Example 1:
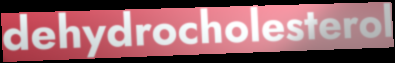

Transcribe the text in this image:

dehydrocholesterol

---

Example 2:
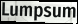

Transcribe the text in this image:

Lumpsum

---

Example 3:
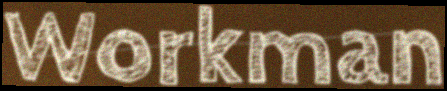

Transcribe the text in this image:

Workman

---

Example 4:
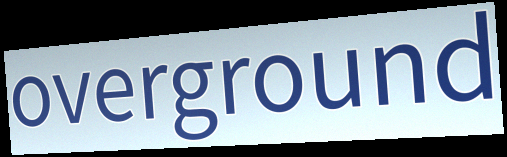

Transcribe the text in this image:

overground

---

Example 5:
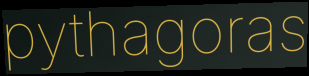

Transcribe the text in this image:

pythagoras